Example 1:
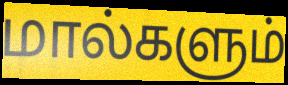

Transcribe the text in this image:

மால்களும்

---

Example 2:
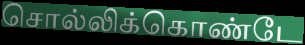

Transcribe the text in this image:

சொல்லிக்கொண்டே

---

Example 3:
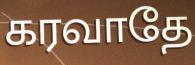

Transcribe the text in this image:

கரவாதே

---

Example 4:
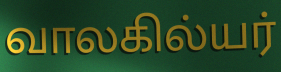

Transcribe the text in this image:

வாலகில்யர்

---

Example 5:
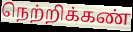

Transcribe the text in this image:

நெற்றிக்கண்